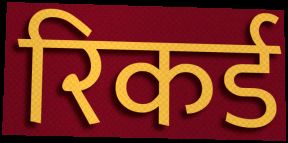
रिकर्ड